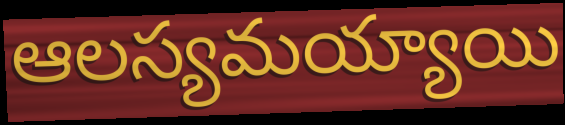
ఆలస్యమయ్యాయి